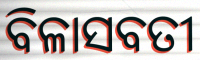
ବିଳାସବତୀ